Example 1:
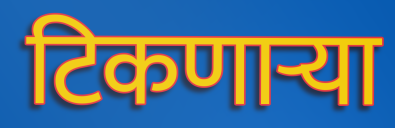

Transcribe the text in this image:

टिकणाऱ्या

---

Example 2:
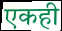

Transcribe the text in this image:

एकही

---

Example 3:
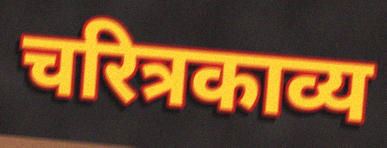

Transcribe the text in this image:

चरित्रकाव्य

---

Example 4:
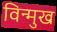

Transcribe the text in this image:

विन्मुख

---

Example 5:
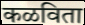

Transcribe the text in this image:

कळविता